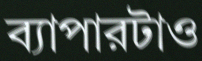
ব্যাপারটাও